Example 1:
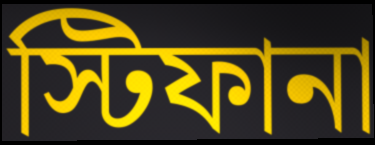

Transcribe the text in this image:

স্টিফানা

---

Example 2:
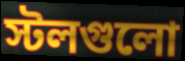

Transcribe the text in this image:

স্টলগুলো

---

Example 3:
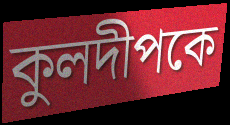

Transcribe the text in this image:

কুলদীপকে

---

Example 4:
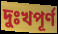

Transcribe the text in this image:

দুঃখপূর্ণ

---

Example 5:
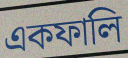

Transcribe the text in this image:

একফালি